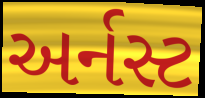
અર્નસ્ટ